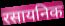
रसायनिक